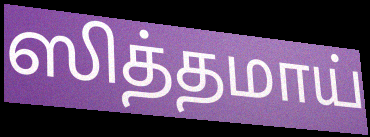
ஸித்தமாய்